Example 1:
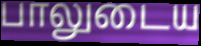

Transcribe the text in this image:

பாலுடைய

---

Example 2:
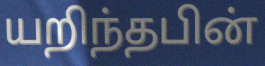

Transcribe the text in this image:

யறிந்தபின்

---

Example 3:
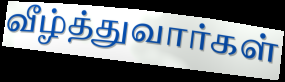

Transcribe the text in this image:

வீழ்த்துவார்கள்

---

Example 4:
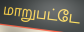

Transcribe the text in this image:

மாறுபட்டே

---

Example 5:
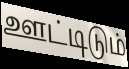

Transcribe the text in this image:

ஊட்டிடும்